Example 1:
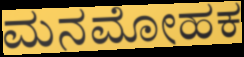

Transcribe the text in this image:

ಮನಮೋಹಕ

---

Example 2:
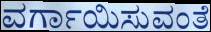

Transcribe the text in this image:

ವರ್ಗಾಯಿಸುವಂತೆ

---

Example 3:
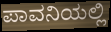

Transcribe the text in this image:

ಪಾವನಿಯಲ್ಲಿ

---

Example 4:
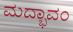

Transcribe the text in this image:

ಮದ್ಭಾವಂ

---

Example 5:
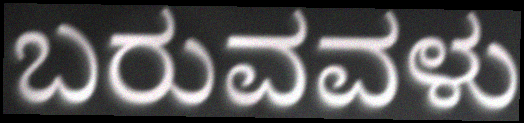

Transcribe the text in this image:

ಬರುವವಳು